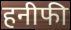
हनीफी